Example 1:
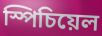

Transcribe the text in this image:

স্পিচিয়েল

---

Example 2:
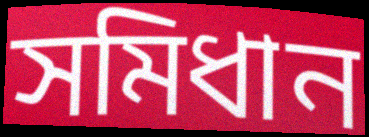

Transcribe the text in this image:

সমিধান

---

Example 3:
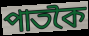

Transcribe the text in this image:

পাতকৈ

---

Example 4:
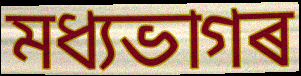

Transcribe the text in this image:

মধ্যভাগৰ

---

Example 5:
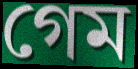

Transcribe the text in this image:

গেম